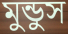
মুন্ডুস